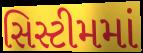
સિસ્ટીમમાં